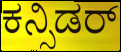
ಕನ್ಸಿಡರ್